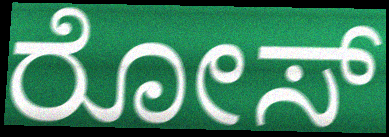
ರೋಸ್